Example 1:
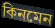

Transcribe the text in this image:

কিনমেন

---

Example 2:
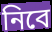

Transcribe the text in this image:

নিবে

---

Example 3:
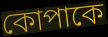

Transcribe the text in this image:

কোপাকে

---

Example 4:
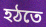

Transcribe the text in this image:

হঠতে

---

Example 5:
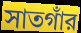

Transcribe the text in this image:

সাতগাঁর